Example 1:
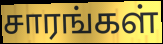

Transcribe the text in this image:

சாரங்கள்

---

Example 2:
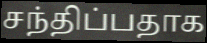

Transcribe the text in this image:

சந்திப்பதாக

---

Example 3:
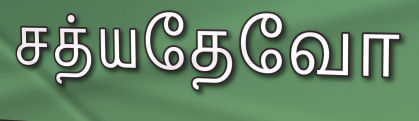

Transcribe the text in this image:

சத்யதேவோ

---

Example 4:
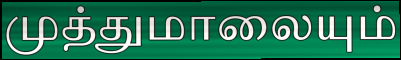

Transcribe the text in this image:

முத்துமாலையும்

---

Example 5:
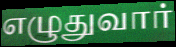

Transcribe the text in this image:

எழுதுவார்